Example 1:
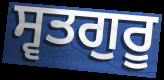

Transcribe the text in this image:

ਸ੍ਵਤਗੁਰੂ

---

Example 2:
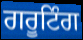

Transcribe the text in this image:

ਗਰੂਟਿੰਗ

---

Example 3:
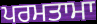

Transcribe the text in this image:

ਪਰਮਤਾਮਾ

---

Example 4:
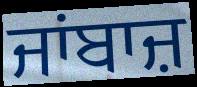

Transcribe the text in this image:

ਜਾਂਬਾਜ਼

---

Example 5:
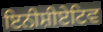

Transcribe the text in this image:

ਇਨੀਸ਼ੀਏਟਿਵ